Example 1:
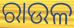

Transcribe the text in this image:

ରାଉଳ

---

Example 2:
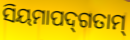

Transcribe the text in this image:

ସିୟମାପଦ୍‌ଗତାମ୍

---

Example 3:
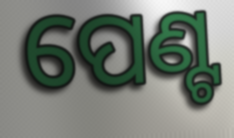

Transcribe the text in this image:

ପେଣ୍ଟ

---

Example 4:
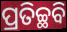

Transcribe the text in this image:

ପ୍ରତିଚ୍ଛବି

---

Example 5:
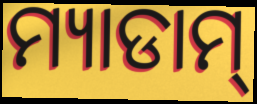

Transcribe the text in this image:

ମ୍ଯାଡାମ୍